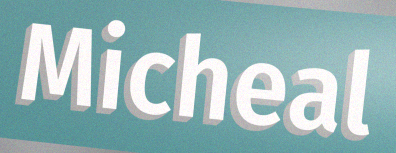
Micheal